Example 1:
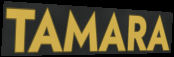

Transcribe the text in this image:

TAMARA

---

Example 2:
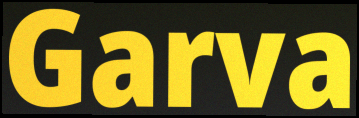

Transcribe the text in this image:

Garva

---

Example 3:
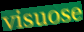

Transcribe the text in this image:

visuose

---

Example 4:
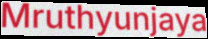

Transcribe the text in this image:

Mruthyunjaya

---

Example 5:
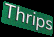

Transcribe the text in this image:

Thrips